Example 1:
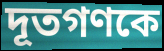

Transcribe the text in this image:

দূতগণকে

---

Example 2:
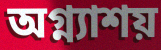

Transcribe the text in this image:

অগ্ন্যাশয়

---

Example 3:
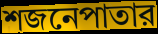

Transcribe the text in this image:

শজনেপাতার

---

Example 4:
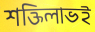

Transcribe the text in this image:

শক্তিলাভই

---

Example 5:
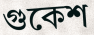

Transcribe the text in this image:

গুকেশ